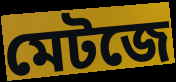
মেটজে